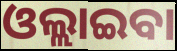
ଓଲ୍ଲାଇବା